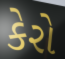
કેરો